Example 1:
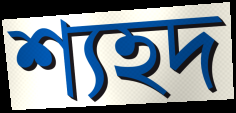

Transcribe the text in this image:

শ্যহদ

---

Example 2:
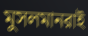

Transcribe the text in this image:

মুসলমানরাই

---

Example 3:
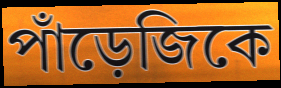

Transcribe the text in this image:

পাঁড়েজিকে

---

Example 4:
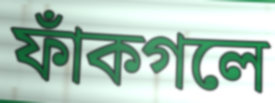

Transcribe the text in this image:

ফাঁকগলে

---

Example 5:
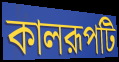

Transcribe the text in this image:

কালরূপটি